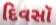
દિવસૉ